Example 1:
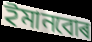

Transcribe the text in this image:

ইমানবোৰ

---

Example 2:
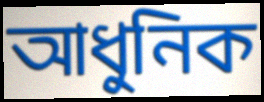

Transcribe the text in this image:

আধুনিক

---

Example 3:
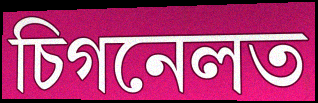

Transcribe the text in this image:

চিগনেলত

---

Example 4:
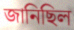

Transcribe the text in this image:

জানিছিল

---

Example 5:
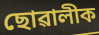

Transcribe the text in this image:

ছোৱালীক